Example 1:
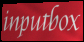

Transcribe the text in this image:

inputbox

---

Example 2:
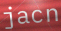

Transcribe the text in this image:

jacn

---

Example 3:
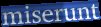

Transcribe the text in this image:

miserunt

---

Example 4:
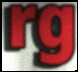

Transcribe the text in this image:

rg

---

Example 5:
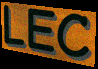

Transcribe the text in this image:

LEC